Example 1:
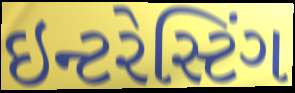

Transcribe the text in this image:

ઇન્ટરેસ્ટિંગ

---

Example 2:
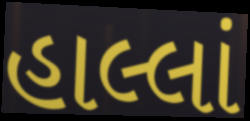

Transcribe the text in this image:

હાલ્લાં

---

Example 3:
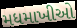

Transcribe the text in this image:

મધમાખીઓ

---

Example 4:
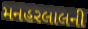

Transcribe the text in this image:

મનહરલાલની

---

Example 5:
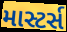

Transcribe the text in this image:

માસ્ટર્સ